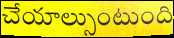
చేయాల్సుంటుంది